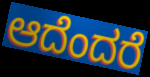
ಆದೆಂದರೆ